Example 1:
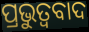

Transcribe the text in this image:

ପ୍ରଭୁତ୍ବବାଦ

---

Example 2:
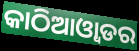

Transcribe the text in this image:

କାଠିଆଓ୍ୱାଡର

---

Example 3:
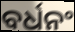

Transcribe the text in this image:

ବର୍ଧନଂ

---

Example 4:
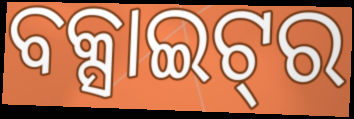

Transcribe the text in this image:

ବକ୍ସାଇଟ୍‌ର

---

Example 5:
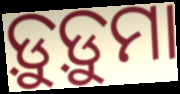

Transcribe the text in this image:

ଡ଼ୁଡ଼ୁମା